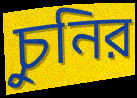
চুনির